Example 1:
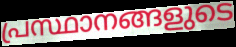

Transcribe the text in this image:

പ്രസ്ഥാനങ്ങളുടെ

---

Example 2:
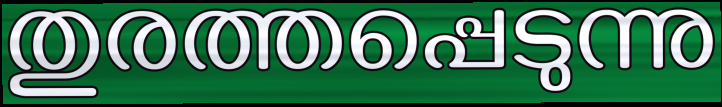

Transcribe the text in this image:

തുരത്തപ്പെടുന്നു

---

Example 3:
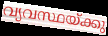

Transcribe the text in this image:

വ്യവസ്ഥയ്ക്കു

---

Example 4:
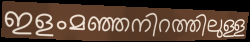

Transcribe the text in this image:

ഇളംമഞ്ഞനിറത്തിലുള്ള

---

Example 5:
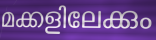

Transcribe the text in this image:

മക്കളിലേക്കും